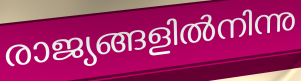
രാജ്യങ്ങളിൽനിന്നു